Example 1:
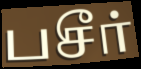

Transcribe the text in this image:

பசீர்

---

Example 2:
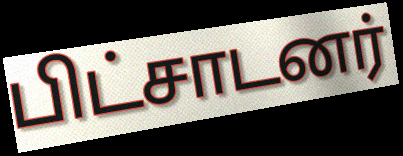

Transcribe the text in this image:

பிட்சாடனர்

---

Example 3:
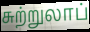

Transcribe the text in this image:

சுற்றுலாப்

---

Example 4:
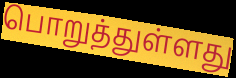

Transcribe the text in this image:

பொறுத்துள்ளது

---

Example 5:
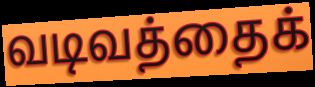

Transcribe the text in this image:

வடிவத்தைக்